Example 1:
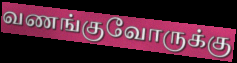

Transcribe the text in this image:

வணங்குவோருக்கு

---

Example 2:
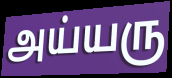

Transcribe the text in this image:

அய்யரு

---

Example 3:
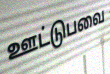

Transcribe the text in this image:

ஊட்டுபவை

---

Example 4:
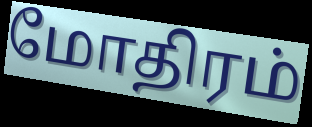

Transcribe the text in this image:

மோதிரம்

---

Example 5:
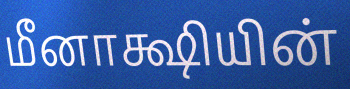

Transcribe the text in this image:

மீனாக்ஷியின்